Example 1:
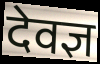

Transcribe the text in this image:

देवज्ञ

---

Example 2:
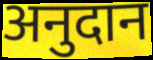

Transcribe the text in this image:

अनुदान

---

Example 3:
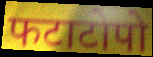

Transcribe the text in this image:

फटाटोपो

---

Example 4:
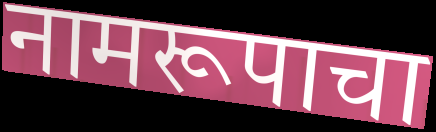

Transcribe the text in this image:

नामरूपाचा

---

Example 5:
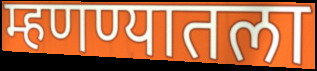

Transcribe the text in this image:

म्हणण्यातला